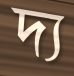
দ্য